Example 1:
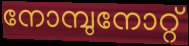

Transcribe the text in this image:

നോമ്പുനോറ്റ്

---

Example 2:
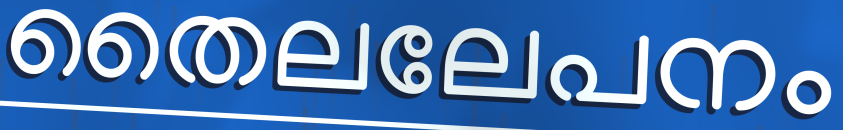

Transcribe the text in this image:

തൈലലേപനം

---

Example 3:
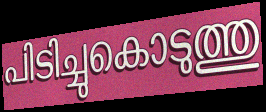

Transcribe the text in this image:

പിടിച്ചുകൊടുത്തു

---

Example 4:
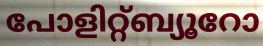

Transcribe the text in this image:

പോളിറ്റ്ബ്യൂറോ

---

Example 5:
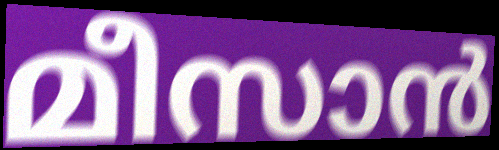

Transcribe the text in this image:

മീസാൻ